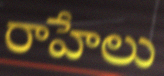
రాహేలు